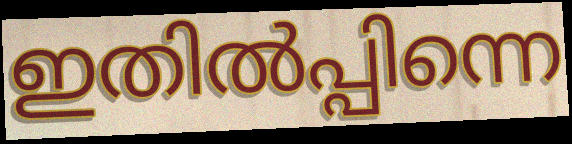
ഇതിൽപ്പിന്നെ